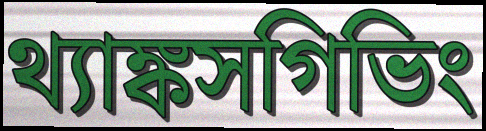
থ্যাঙ্কসগিভিং